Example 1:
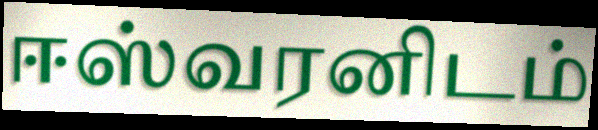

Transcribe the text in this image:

ஈஸ்வரனிடம்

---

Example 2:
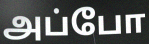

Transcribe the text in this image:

அப்போ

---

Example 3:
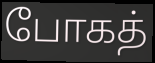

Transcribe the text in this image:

போகத்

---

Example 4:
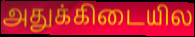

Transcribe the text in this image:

அதுக்கிடையில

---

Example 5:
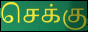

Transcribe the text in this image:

செக்கு